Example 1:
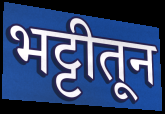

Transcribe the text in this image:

भट्टीतून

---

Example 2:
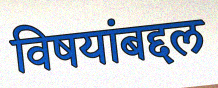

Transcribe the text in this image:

विषयांबद्दल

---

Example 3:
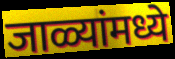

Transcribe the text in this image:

जाळ्यांमध्ये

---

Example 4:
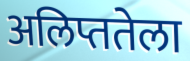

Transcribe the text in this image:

अलिप्ततेला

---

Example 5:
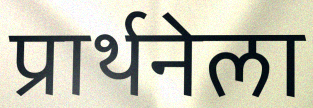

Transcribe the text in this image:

प्रार्थनेला